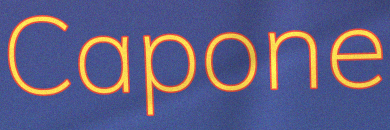
Capone